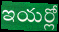
ఇయర్లో